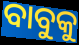
ବାବୁକୁ